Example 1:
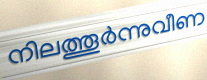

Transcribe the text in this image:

നിലത്തൂർന്നുവീണ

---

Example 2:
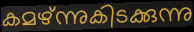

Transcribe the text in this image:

കമഴ്ന്നുകിടക്കുന്നു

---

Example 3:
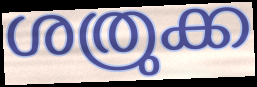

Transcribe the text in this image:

ശത്രുക്ക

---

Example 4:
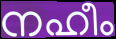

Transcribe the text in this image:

നഹീം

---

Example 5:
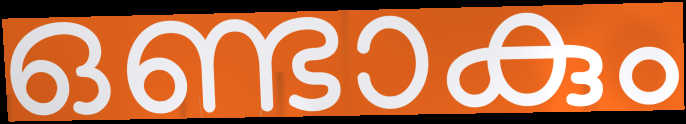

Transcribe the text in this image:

ഒണ്ടാകും